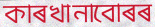
কাৰখানাবোৰৰ